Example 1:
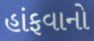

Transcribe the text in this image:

હાંફવાનો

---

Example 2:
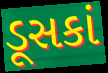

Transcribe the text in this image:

ડૂસકાં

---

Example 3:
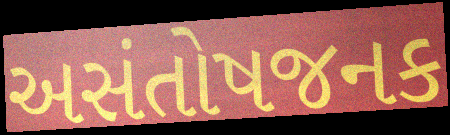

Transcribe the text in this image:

અસંતોષજનક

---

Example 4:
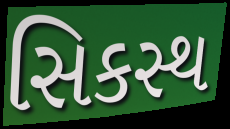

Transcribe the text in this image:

સિકસ્થ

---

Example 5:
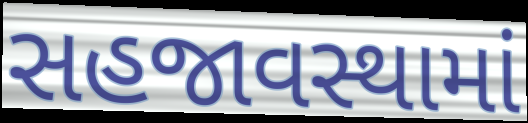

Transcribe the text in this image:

સહજાવસ્થામાં